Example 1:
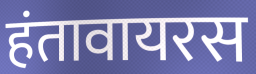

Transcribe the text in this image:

हंतावायरस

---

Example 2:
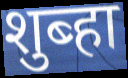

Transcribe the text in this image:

शुब्हा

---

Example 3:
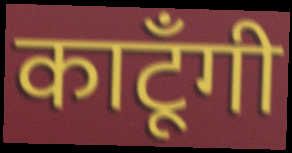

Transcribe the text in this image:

काटूँगी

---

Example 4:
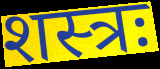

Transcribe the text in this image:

शस्त्रः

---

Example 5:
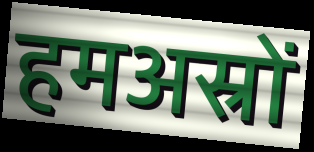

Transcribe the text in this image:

हमअस्रों